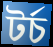
টর্চ